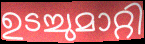
ഉടച്ചുമാറ്റി